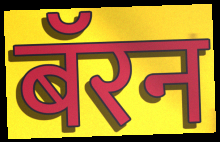
बॅरन